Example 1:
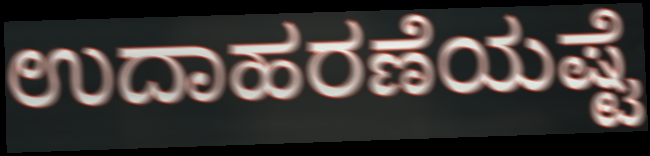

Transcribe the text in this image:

ಉದಾಹರಣೆಯಷ್ಟೆ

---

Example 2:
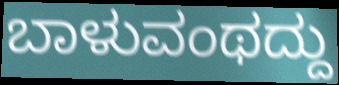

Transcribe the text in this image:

ಬಾಳುವಂಥದ್ದು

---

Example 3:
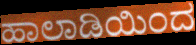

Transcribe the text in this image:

ಹಾಲಾಡಿಯಿಂದ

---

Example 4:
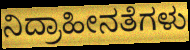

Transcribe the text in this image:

ನಿದ್ರಾಹೀನತೆಗಳು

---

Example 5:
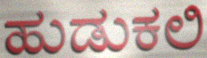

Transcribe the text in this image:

ಹುಡುಕಲಿ